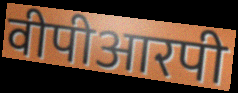
वीपीआरपी